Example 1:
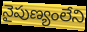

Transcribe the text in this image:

నైపుణ్యంలేని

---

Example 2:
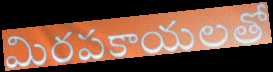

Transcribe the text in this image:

మిరపకాయలతో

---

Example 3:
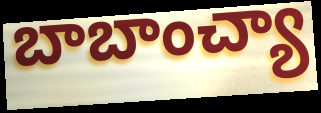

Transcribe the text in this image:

బాబాంచ్యా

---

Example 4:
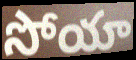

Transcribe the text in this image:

సోయా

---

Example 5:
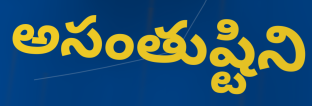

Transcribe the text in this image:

అసంతుష్టిని